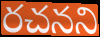
రచనని